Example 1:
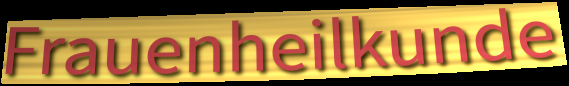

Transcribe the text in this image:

Frauenheilkunde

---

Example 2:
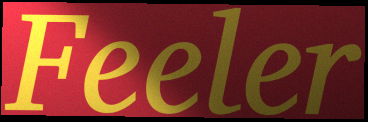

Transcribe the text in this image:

Feeler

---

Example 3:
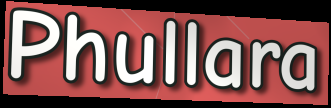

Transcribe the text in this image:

Phullara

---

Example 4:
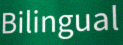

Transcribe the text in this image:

Bilingual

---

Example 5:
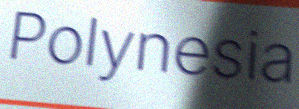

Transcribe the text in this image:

Polynesia